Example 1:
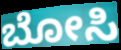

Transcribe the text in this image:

ಬೋಸಿ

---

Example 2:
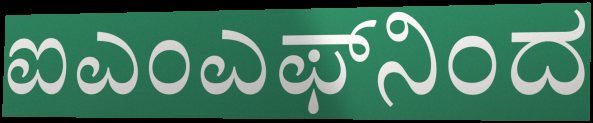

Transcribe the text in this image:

ಐಎಂಎಫ್‌ನಿಂದ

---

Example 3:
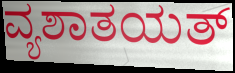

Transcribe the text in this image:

ವ್ಯಶಾತಯತ್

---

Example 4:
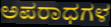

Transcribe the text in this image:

ಅಪರಾಧಗಳ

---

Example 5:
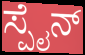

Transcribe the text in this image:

ಸ್ಪೈನ್